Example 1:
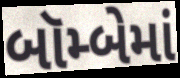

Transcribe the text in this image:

બૉમ્બેમાં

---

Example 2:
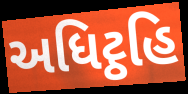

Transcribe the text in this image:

અધિટ્ઠહિ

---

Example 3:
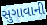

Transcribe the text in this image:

સુગાવાની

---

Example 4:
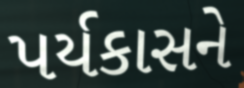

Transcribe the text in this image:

પર્યકાસને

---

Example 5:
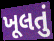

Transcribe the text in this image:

ખૂલતું